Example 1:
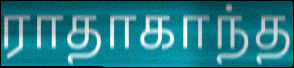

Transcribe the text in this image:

ராதாகாந்த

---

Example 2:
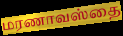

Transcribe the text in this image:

மரணாவஸ்தை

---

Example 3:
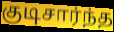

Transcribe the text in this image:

குடிசார்ந்த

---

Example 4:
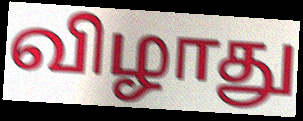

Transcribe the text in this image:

விழாது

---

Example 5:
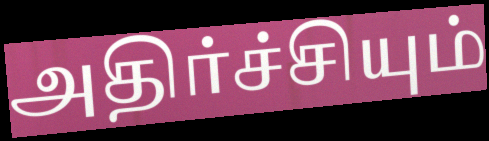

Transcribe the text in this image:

அதிர்ச்சியும்